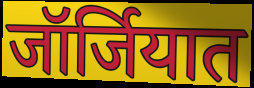
जॉर्जियात